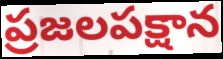
ప్రజలపక్షాన